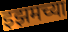
इझमच्या